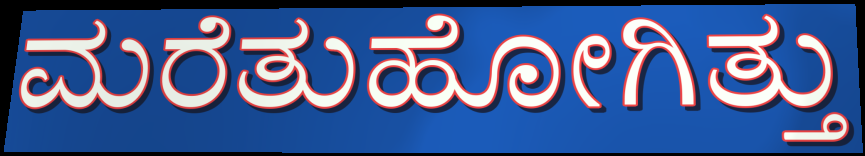
ಮರೆತುಹೋಗಿತ್ತು